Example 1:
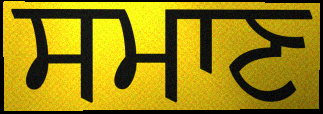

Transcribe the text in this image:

ਸਮਾਣ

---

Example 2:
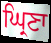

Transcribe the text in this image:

ਘ੍ਰਿਣਾ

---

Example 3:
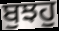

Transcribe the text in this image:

ਬੁਝਹੁ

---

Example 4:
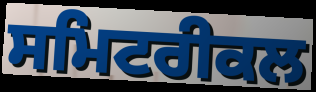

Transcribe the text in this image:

ਸਮਿਟਰੀਕਲ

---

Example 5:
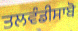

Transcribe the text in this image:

ਤਲਵੰਡੀਸਾਬੋ